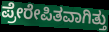
ಪ್ರೇರೇಪಿತವಾಗಿತ್ತು